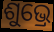
ଶୁଭ୍ରେ